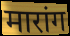
मारांग